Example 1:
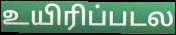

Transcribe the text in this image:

உயிரிப்படல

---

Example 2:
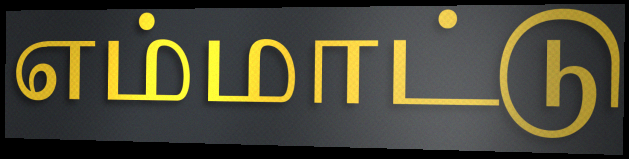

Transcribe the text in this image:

எம்மாட்டு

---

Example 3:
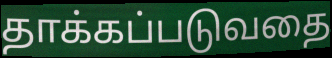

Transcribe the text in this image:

தாக்கப்படுவதை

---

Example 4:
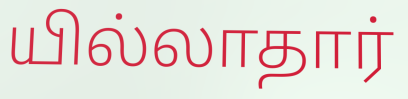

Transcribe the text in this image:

யில்லாதார்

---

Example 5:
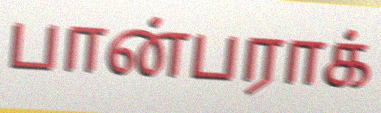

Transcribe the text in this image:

பான்பராக்